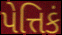
પેત્તિકં